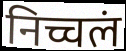
निच्चलं